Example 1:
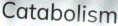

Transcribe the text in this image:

Catabolism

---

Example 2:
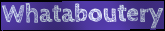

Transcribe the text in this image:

Whataboutery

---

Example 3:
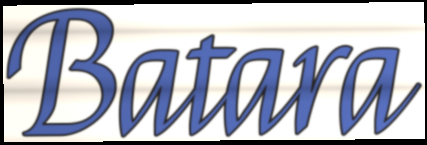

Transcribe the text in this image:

Batara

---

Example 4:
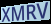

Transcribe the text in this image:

XMRV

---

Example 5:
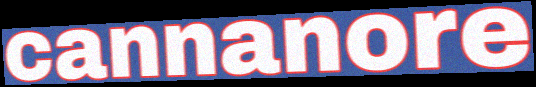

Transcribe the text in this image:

cannanore